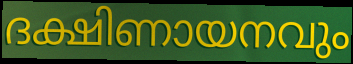
ദക്ഷിണായനവും